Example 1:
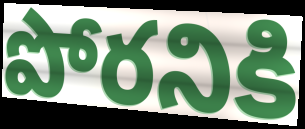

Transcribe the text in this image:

పోరనికి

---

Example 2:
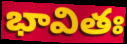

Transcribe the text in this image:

భావితః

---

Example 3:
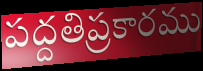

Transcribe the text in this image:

పద్దతిప్రకారము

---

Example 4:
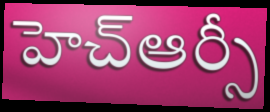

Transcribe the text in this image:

హెచ్ఆర్సీ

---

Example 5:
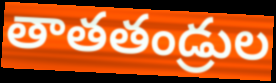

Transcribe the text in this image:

తాతతండ్రుల